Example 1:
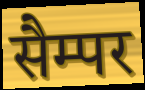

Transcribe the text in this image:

सैम्पर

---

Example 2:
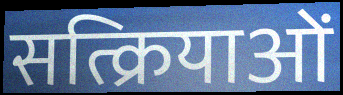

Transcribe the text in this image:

सत्क्रियाओं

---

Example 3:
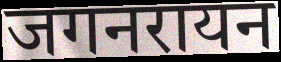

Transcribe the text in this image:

जगनरायन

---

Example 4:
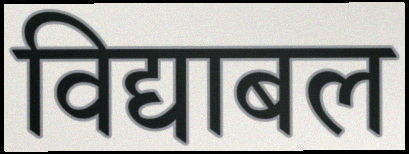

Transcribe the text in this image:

विद्याबल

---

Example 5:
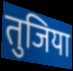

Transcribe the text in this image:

तुजिया